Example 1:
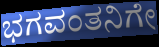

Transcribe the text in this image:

ಭಗವಂತನಿಗೇ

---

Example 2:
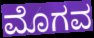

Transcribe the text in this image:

ಮೊಗವ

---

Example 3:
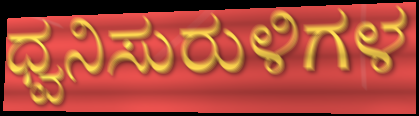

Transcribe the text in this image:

ಧ್ವನಿಸುರುಳಿಗಳ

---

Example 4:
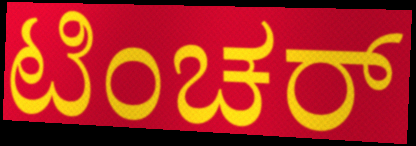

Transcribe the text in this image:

ಟಿಂಚರ್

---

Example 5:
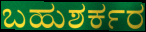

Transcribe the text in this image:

ಬಹುಶರ್ಕರ